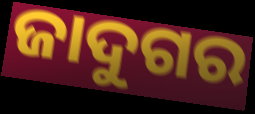
ଜାଦୁଗର